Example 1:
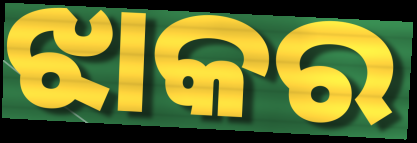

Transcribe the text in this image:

ଝାକର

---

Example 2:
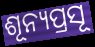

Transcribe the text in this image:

ଶୂନ୍ୟପ୍ରସୂ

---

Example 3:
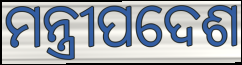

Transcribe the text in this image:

ମନ୍ତ୍ରୀପଦେଶ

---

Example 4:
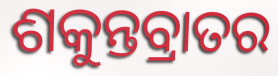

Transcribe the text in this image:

ଶକୁନ୍ତବ୍ରାତର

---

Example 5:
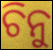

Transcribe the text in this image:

ଚିନୁ